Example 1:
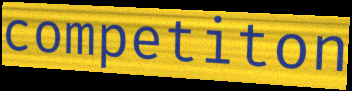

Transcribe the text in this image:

competiton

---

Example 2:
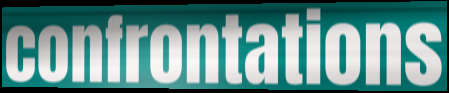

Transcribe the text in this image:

confrontations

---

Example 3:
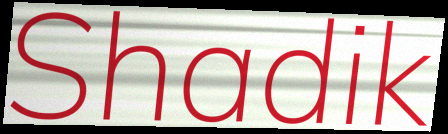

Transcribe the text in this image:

Shadik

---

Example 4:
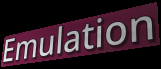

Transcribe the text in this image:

Emulation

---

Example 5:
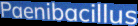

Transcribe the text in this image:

Paenibacillus